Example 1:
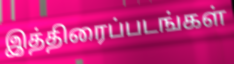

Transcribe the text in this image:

இத்திரைப்படங்கள்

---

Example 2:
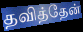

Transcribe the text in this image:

தவித்தேன்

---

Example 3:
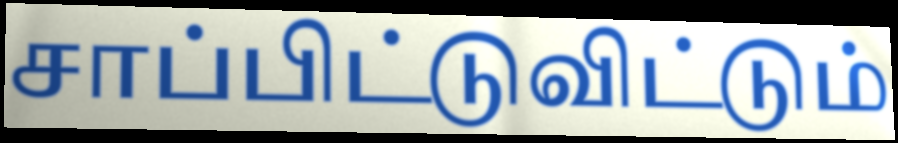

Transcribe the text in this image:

சாப்பிட்டுவிட்டும்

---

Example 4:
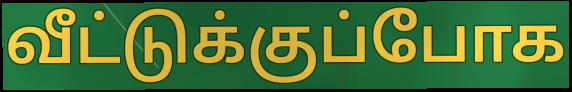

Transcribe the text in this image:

வீட்டுக்குப்போக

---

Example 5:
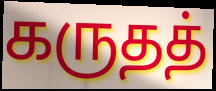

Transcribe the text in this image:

கருதத்